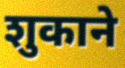
शुकाने